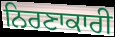
ਨਿਰਣਾਕਾਰੀ